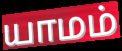
யாமம்